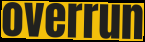
overrun